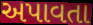
અપાવતા